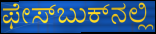
ಫೇಸ್‌ಬುಕ್‌ನಲ್ಲಿ